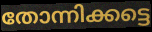
തോന്നിക്കട്ടെ